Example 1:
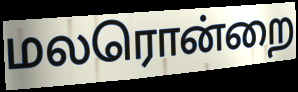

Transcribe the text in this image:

மலரொன்றை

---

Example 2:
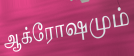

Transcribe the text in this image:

ஆக்ரோஷமும்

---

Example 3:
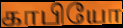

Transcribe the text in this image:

காபியோ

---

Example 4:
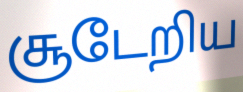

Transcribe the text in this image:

சூடேறிய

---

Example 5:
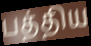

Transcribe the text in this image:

பத்திய